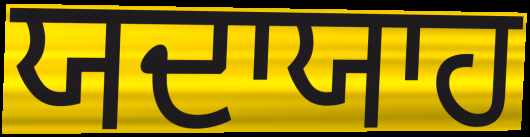
ਯਦਾਯਾਹ